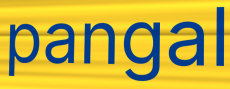
pangal